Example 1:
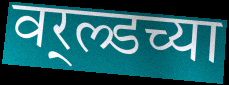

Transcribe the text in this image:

वर्ल्डच्या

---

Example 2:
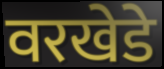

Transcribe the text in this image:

वरखेडे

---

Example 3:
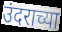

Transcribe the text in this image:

उंदराच्या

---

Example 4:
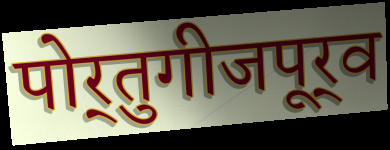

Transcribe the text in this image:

पोर्तुगीजपूर्व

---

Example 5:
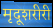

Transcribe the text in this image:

मृदूशरीरी